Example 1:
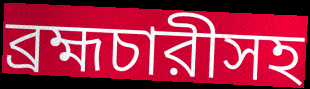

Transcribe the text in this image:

ব্রহ্মচারীসহ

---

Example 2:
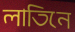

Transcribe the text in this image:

লাতিনে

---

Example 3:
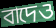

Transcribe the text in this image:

বাদেও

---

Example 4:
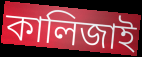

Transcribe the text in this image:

কালিজাই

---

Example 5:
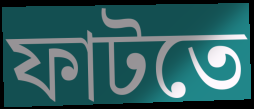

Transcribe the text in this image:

ফাটতে